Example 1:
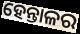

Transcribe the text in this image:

ହେନ୍ତାଳର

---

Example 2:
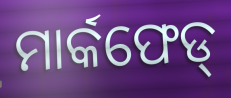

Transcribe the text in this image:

ମାର୍କଫେଡ୍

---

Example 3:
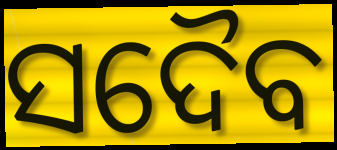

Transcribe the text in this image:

ସଦୈବ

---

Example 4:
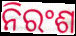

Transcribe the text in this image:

ନିରଂଶ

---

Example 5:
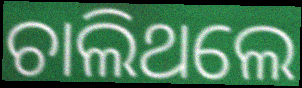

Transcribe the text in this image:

ଚାଲିଥଲେ